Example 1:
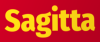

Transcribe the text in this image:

Sagitta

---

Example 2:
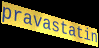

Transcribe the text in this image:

pravastatin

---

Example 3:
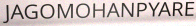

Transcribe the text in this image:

JAGOMOHANPYARE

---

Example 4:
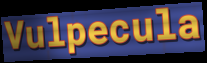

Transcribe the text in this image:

Vulpecula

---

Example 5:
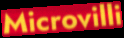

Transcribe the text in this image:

Microvilli